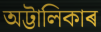
অট্টালিকাৰ